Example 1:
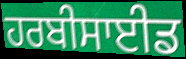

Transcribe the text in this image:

ਹਰਬੀਸਾਈਡ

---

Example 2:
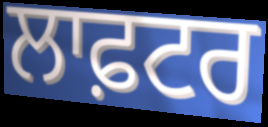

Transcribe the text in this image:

ਲਾਫ਼ਟਰ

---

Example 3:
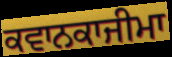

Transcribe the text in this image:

ਕਵਾਨਕਾਜੀਮਾ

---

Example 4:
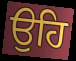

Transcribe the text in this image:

ਉਹਿ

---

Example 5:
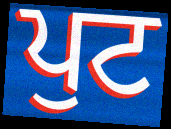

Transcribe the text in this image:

ਪੁਟ